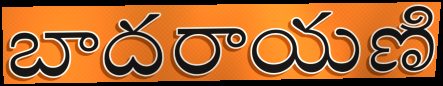
బాదరాయణి